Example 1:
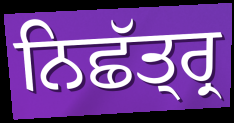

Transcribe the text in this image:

ਨਿਛੱਤ੍ਰ੍ਰ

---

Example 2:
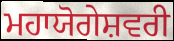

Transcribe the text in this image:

ਮਹਾਯੋਗੇਸ਼ਵਰੀ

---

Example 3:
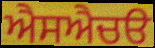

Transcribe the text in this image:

ਐਸਐਚੳ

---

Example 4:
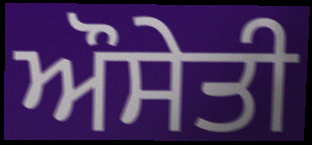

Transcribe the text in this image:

ਔਸੇਤੀ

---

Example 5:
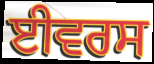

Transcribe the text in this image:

ਈਵਰਸ